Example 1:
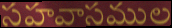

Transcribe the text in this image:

సహవాసముల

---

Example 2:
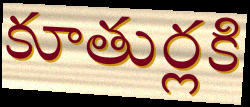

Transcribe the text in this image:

కూతుర్లకి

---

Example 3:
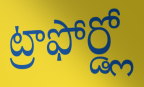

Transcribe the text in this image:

ట్రాఫోర్డ్లో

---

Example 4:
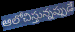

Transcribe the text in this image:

ఆలోచిస్తున్నప్పుడే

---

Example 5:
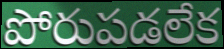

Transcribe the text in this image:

పోరుపడలేక